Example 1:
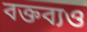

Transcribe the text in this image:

বক্তব্যও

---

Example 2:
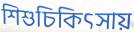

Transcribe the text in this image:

শিশুচিকিৎসায়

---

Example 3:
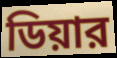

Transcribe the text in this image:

ডিয়ার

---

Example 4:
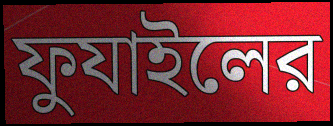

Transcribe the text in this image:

ফুযাইলের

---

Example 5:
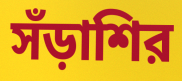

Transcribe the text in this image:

সঁড়াশির